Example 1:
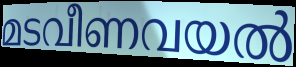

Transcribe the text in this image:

മടവീണവയൽ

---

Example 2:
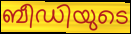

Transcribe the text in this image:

ബീഡിയുടെ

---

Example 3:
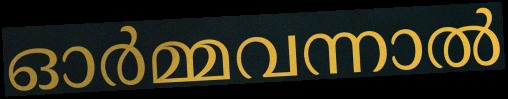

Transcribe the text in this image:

ഓർമ്മവന്നാൽ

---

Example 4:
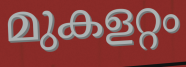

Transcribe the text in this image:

മുകളറ്റം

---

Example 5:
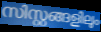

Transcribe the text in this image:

സിസ്റ്റങ്ങളിലും